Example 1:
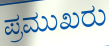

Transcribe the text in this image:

ಪ್ರಮುಖರು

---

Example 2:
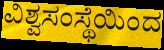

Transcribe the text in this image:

ವಿಶ್ವಸಂಸ್ಥೆಯಿಂದ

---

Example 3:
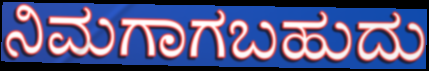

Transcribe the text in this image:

ನಿಮಗಾಗಬಹುದು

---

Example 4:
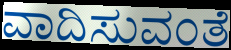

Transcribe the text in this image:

ವಾದಿಸುವಂತೆ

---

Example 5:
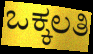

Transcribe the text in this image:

ಒಕ್ಕಲತಿ